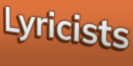
Lyricists